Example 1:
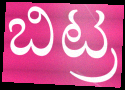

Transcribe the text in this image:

ಬಿಟ್ರ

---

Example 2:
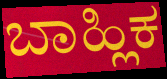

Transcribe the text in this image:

ಬಾಹ್ಲಿಕ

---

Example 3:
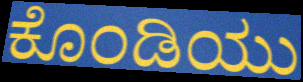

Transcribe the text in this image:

ಕೊಂಡಿಯು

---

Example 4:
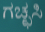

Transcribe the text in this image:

ಗಚ್ಛಸಿ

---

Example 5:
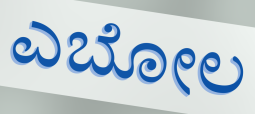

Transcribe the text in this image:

ಎಬೋಲ